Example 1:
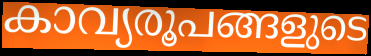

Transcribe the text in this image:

കാവ്യരൂപങ്ങളുടെ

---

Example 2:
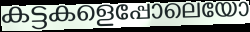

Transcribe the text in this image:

കട്ടകളെപ്പോലെയോ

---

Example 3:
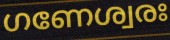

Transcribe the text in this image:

ഗണേശ്വരഃ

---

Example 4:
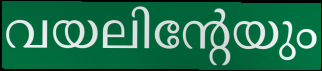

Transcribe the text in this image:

വയലിന്റേയും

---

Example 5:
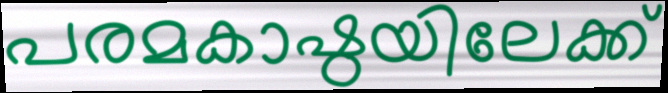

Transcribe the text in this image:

പരമകാഷ്ഠയിലേക്ക്